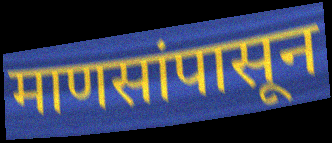
माणसांपासून